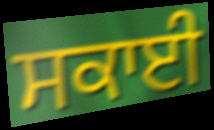
ਸਕਾਈ